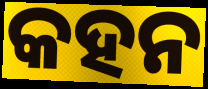
କହନ